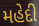
મહેદી